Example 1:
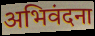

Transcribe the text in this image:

अभिवंदना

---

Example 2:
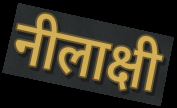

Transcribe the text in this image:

नीलाक्षी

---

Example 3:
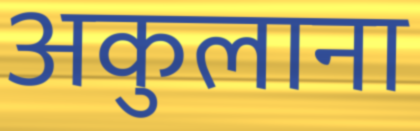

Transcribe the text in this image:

अकुलाना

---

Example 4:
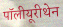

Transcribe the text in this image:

पॉलीयूरीथेन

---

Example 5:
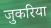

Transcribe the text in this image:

जुकरिया